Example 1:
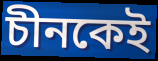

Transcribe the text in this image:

চীনকেই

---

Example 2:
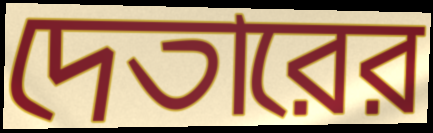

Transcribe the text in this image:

দেতারের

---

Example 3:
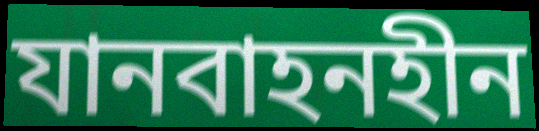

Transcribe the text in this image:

যানবাহনহীন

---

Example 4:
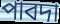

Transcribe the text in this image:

পাবদা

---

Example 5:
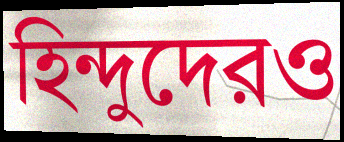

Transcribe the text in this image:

হিন্দুদেরও